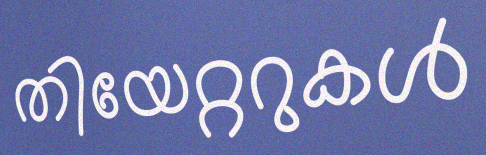
തിയേറ്ററുകൾ